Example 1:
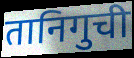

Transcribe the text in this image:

तानिगुची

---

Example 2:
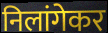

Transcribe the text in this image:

निलांगेकर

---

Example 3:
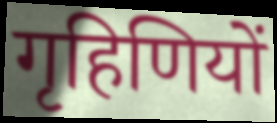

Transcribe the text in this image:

गृहिणियों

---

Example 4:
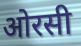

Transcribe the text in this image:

ओरसी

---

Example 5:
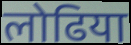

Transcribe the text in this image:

लोढिया